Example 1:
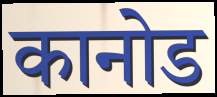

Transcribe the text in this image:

कानोड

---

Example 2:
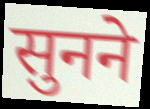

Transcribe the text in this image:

सुनने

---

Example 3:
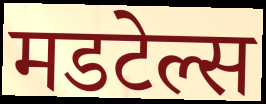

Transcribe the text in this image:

मडटेल्स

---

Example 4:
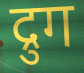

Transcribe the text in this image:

द्रुग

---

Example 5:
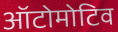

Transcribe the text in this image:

ऑटोमोटिव